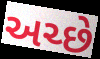
અચ્છે